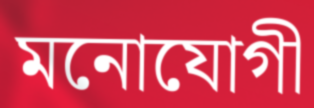
মনোযোগী